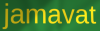
jamavat